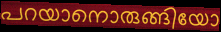
പറയാനൊരുങ്ങിയോ